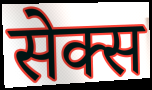
सेक्स